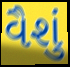
વૈશું